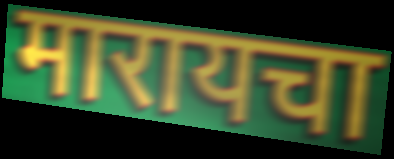
मारायचा